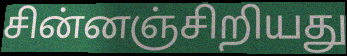
சின்னஞ்சிறியது